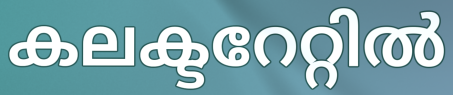
കലക്ടറേറ്റിൽ